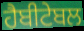
ਹੈਬੀਟੇਬਲ